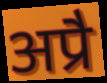
अप्रै